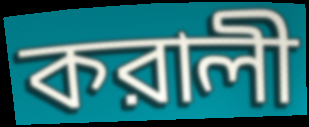
করালী